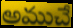
అముచే